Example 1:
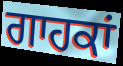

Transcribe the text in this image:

ਗਾਹਕਾਂ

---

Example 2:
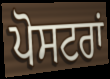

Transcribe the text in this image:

ਪੋਸਟਰਾਂ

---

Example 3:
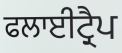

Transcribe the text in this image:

ਫਲਾਈਟ੍ਰੈਪ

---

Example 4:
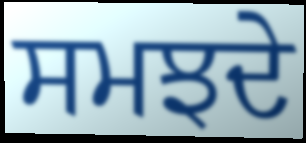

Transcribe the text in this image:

ਸਮਝਦੇ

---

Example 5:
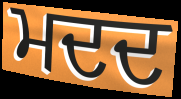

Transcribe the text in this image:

ਮਦਦ